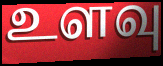
உளவு